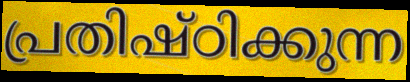
പ്രതിഷ്ഠിക്കുന്ന